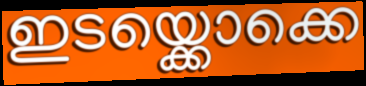
ഇടയ്ക്കൊക്കെ